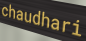
chaudhari